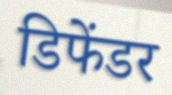
डिफेंडर